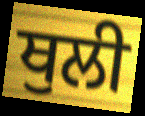
ਥੁਲੀ